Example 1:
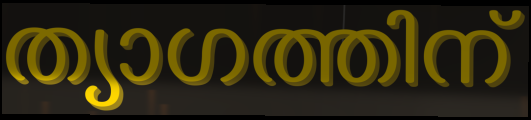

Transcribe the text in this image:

ത്യാഗത്തിന്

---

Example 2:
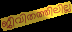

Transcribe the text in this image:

ജീവിതത്തിലില്ല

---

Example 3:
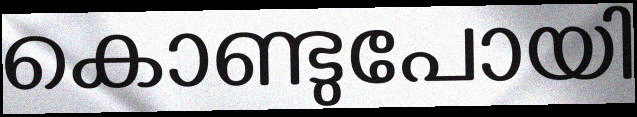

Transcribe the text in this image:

കൊണ്ടുപോയി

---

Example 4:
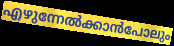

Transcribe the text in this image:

എഴുന്നേൽക്കാൻപോലും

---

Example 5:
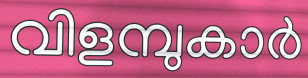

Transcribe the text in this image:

വിളമ്പുകാർ